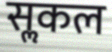
सॢकल